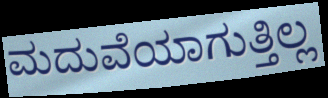
ಮದುವೆಯಾಗುತ್ತಿಲ್ಲ